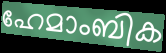
ഹേമാംബിക